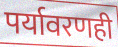
पर्यावरणही